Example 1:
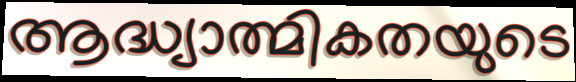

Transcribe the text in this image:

ആദ്ധ്യാത്മികതയുടെ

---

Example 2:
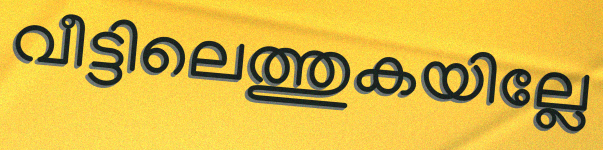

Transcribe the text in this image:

വീട്ടിലെത്തുകയില്ലേ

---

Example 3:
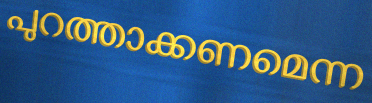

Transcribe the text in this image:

പുറത്താക്കണമെന്ന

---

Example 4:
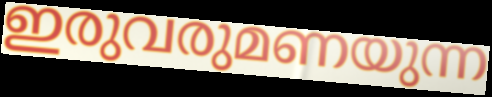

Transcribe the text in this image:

ഇരുവരുമണയുന്ന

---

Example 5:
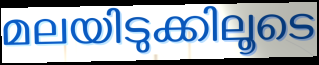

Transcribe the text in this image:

മലയിടുക്കിലൂടെ